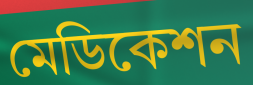
মেডিকেশন